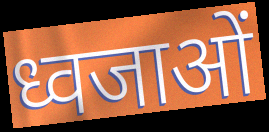
ध्वजाओं